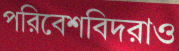
পরিবেশবিদরাও